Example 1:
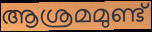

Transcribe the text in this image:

ആശ്രമമുണ്ട്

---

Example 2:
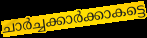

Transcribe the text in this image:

ചാർച്ചക്കാർക്കാകട്ടെ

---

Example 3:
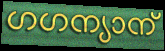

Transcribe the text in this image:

ഗഗന്യാന്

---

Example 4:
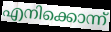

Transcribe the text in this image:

എനിക്കൊന്ന്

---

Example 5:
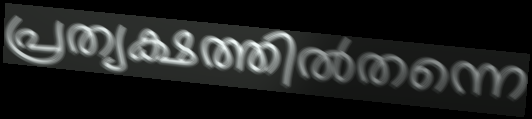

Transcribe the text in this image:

പ്രത്യക്ഷത്തിൽതന്നെ